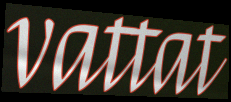
vattat